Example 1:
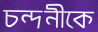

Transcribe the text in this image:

চন্দনীকে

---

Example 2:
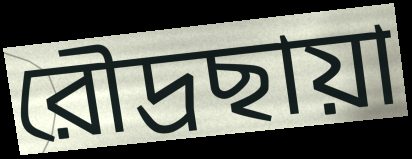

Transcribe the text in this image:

রৌদ্রছায়া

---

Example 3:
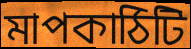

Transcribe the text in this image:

মাপকাঠিটি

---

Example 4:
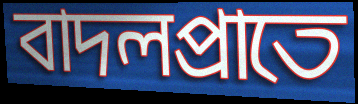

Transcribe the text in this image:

বাদলপ্রাতে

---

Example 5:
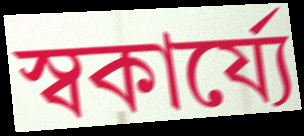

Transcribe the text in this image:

স্বকার্য্যে